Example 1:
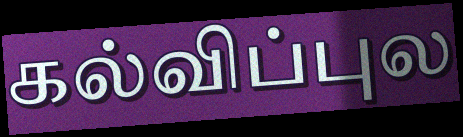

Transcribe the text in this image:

கல்விப்புல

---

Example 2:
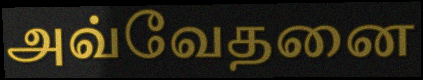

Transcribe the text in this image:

அவ்வேதனை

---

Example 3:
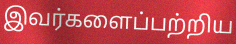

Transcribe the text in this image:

இவர்களைப்பற்றிய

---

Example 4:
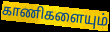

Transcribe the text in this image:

காணிகளையும்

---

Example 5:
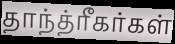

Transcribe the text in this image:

தாந்த்ரீகர்கள்